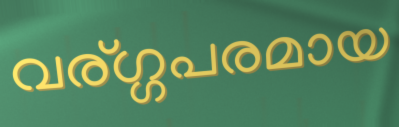
വര്ഗ്ഗപരമായ